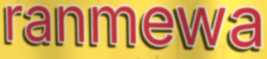
ranmewa